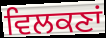
ਵਿਲਕਣਾਂ